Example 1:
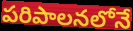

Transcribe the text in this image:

పరిపాలనలోనే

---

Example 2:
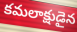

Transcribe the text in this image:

కమలాక్షుడైన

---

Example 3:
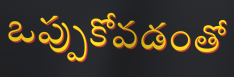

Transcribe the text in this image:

ఒప్పుకోవడంతో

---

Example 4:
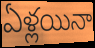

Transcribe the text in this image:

ఏళ్లయినా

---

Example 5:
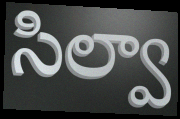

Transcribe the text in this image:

సిల్వా